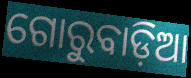
ଗୋରୁବାଡ଼ିଆ